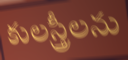
కులస్త్రీలను